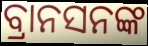
ବ୍ରାନସନଙ୍କ